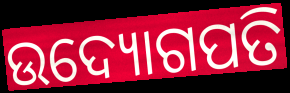
ଉଦ୍ୟୋଗପତି